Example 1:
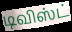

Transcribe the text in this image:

டிவிஸ்ட்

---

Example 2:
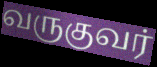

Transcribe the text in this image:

வருகுவர்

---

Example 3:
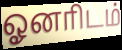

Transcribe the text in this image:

ஓனரிடம்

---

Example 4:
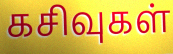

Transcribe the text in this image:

கசிவுகள்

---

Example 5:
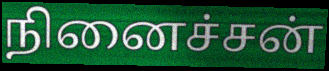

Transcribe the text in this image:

நினைச்சன்